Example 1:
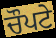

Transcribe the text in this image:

ਚੌਪਟੇ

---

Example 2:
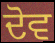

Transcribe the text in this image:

ਦੋਵ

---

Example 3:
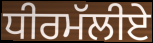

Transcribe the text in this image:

ਧੀਰਮੱਲੀਏ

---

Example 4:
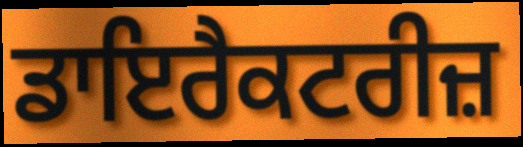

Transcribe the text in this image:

ਡਾਇਰੈਕਟਰੀਜ਼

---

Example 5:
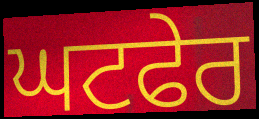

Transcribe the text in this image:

ਘਟਫੇਰ